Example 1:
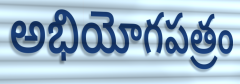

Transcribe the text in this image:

అభియోగపత్రం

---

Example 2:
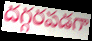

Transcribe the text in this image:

దగ్గరపడగా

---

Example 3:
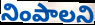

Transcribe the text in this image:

నింపాలని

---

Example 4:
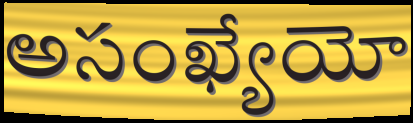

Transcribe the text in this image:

అసంఖ్యేయో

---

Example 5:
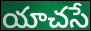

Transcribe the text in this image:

యాచసే